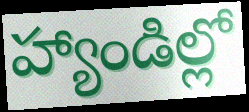
హ్యాండిల్లో